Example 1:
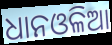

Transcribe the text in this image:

ଧାନଓଳିଆ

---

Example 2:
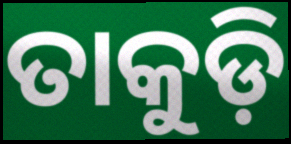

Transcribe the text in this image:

ତାକୁଡ଼ି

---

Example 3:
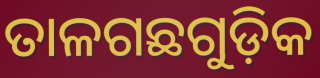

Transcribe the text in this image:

ତାଳଗଛଗୁଡ଼ିକ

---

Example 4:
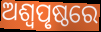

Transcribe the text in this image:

ଅଶ୍ୱପୃଷ୍ଠରେ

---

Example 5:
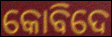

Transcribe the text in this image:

କୋବିଦେ